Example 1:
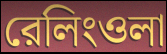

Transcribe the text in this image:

রেলিংওলা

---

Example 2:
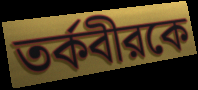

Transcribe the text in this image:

তর্কবীরকে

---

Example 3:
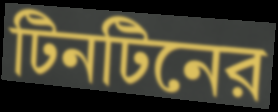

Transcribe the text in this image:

টিনটিনের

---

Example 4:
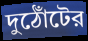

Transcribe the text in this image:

দুঠোঁটের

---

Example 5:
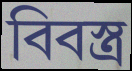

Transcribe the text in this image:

বিবস্ত্র